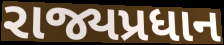
રાજ્યપ્રધાન